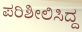
ಪರಿಶೀಲಿಸಿದ್ದ